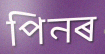
পিনৰ